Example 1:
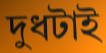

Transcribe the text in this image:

দুধটাই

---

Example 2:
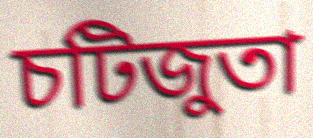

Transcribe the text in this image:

চটিজুতা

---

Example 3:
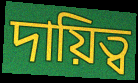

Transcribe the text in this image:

দায়িত্ব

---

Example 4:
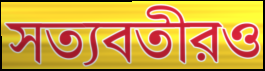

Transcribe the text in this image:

সত্যবতীরও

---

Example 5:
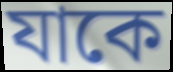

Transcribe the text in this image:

যাকে